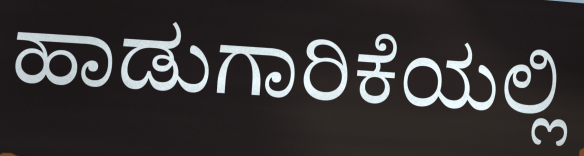
ಹಾಡುಗಾರಿಕೆಯಲ್ಲಿ